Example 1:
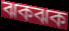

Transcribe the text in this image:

ঝকঝক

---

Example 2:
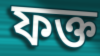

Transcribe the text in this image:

ফক্ত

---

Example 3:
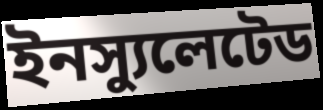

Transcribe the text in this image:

ইনস্যুলেটেড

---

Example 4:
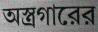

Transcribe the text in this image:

অস্ত্রগারের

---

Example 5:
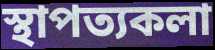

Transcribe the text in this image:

স্থাপত্যকলা